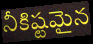
నీకిష్టమైన